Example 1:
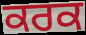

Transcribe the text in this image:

ਕਰਕ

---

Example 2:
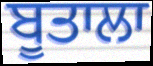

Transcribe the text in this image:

ਬੂਤਾਲਾ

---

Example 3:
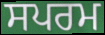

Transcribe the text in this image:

ਸਪਰਮ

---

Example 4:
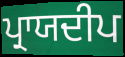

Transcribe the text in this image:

ਪ੍ਰਾਯਦੀਪ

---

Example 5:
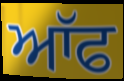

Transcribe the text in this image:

ਆੱਫ